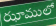
ఝాములో